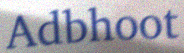
Adbhoot